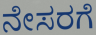
ನೇಸರಗೆ